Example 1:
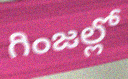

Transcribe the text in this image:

గింజల్లో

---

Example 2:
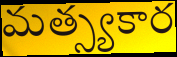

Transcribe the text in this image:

మత్స్యకార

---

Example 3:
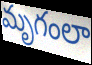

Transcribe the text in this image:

మృగంలా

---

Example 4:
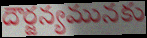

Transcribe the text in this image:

దౌర్జన్యమునకు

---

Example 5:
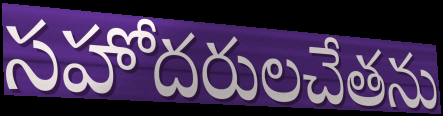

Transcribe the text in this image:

సహోదరులచేతను